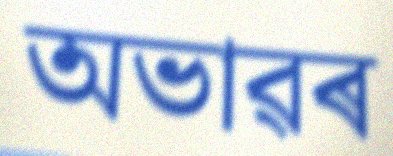
অভাৱৰ